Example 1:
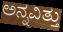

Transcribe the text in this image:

ಅನ್ನವಿತ್ತು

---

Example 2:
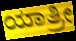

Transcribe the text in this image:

ಯಾತ್ರೀ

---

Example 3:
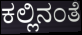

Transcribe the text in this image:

ಕಲ್ಲಿನಂತೆ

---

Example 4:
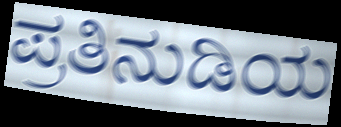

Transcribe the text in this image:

ಪ್ರತಿನುಡಿಯ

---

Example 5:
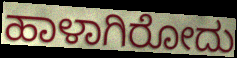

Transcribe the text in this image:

ಹಾಳಾಗಿರೋದು